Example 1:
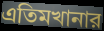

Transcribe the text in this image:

এতিমখানার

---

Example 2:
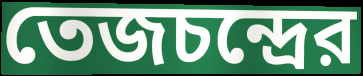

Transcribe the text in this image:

তেজচন্দ্রের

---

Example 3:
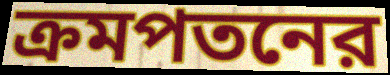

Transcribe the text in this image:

ক্রমপতনের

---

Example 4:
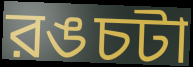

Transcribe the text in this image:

রঙচটা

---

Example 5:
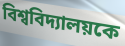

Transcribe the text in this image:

বিশ্ববিদ্যালয়কে